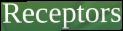
Receptors